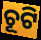
ଚୂଟି